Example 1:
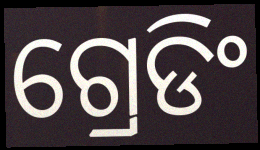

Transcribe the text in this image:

ଗ୍ରେଡିଂ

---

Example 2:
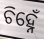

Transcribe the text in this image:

ଚିହ୍ନେଁ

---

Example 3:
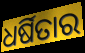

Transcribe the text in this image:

ଧର୍ଷିତାର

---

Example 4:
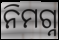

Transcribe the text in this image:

ନିମଗ୍ନ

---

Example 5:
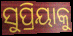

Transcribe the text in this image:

ସୁପ୍ରିୟାକୁ